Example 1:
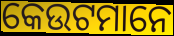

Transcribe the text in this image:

କେଉଟମାନେ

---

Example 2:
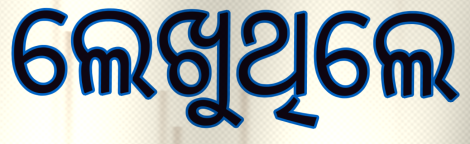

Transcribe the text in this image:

ଲେଖୁଥିଲେ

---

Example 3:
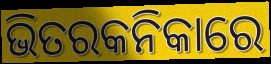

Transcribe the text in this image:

ଭିତରକନିକାରେ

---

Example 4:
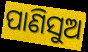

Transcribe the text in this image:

ପାଣିସୁଅ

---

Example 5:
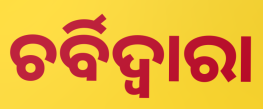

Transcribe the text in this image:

ଚର୍ବିଦ୍ଵାରା